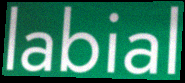
labial